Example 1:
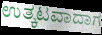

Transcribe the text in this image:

ಉತ್ಕಟವಾದಾಗ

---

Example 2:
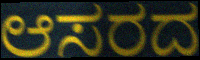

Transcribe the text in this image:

ಆಸರದ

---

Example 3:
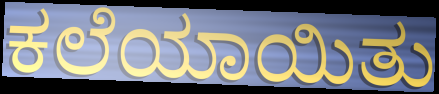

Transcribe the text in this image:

ಕಲೆಯಾಯಿತು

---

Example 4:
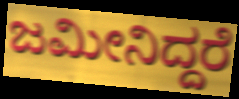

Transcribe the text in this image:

ಜಮೀನಿದ್ದರೆ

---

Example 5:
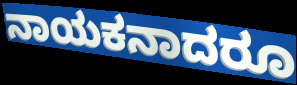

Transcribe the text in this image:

ನಾಯಕನಾದರೂ